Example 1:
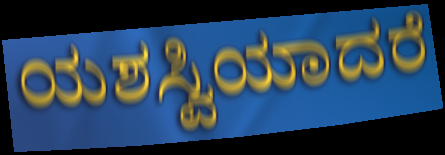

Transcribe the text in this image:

ಯಶಸ್ವಿಯಾದರೆ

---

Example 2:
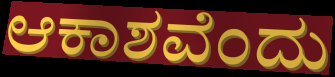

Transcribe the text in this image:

ಆಕಾಶವೆಂದು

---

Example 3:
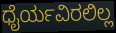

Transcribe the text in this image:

ಧೈರ್ಯವಿರಲಿಲ್ಲ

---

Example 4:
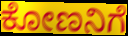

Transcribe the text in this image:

ಕೋಣನಿಗೆ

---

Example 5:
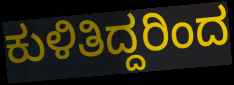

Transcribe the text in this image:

ಕುಳಿತಿದ್ದರಿಂದ